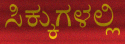
ಸಿಕ್ಕುಗಳಲ್ಲಿ